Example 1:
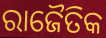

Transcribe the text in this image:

ରାଜୈତିକ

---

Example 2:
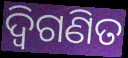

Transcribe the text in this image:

ଦ୍ୱିଗଣିତ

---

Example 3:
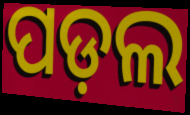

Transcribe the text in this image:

ପଡ଼ଲ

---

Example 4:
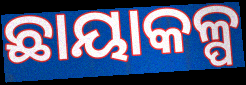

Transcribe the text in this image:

ଛାୟାକଳ୍ପ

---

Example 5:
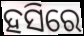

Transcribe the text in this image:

ହସିରେ